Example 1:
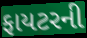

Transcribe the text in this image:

ફાયટરની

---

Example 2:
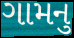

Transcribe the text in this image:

ગામનુ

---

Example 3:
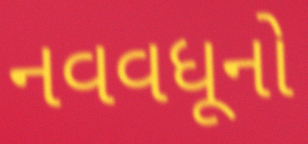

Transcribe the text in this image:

નવવધૂનો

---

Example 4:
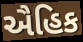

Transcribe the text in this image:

ઐહિક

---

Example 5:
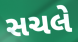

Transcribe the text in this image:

સચલે